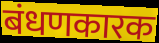
बंधणकारक